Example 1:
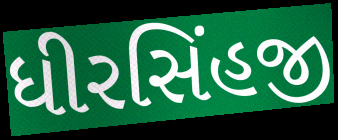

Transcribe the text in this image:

ધીરસિંહજી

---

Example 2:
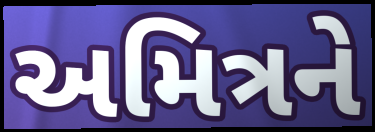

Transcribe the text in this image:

અમિત્રને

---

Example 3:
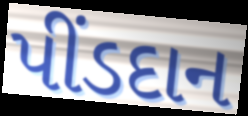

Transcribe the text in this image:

પીંડદાન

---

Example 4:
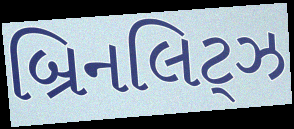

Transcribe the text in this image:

બ્રિનલિટ્ઝ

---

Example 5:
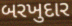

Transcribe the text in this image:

બરખુદાર